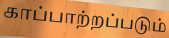
காப்பாற்றப்படும்